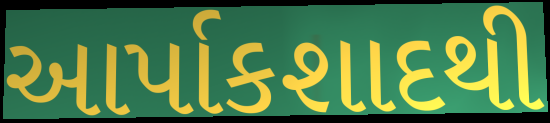
આર્પાકશાદથી